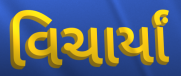
વિચાર્યાં